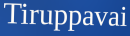
Tiruppavai